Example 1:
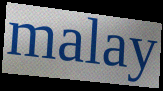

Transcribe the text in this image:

malay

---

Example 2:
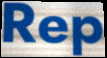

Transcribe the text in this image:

Rep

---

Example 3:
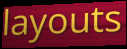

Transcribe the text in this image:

layouts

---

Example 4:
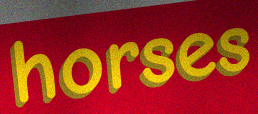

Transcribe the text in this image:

horses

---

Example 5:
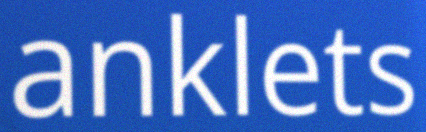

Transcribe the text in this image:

anklets